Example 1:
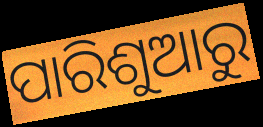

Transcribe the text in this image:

ପାରିଶୁଆରୁ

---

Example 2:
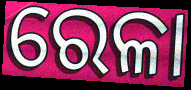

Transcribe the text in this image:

ରେଳା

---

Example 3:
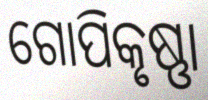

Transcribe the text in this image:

ଗୋପିକୃଷ୍ଣା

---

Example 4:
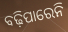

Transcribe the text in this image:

ବଢ଼ିପାରେନି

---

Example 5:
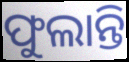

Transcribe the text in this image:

ଫୁଲାନ୍ତି